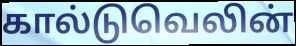
கால்டுவெலின்